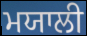
ਮਯਾਲੀ